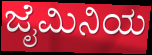
ಜೈಮಿನಿಯ